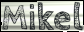
Mikel